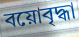
বয়োবৃদ্ধা